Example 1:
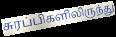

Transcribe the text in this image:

சுரப்பிகளிலிருந்து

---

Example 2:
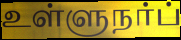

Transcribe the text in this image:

உள்ளுநர்ப்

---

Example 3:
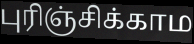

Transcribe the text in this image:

புரிஞ்சிக்காம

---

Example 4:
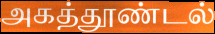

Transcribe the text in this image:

அகத்தூண்டல்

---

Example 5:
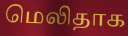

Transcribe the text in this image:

மெலிதாக